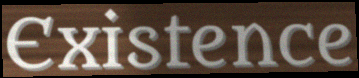
Existence